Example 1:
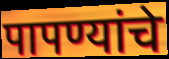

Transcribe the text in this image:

पापण्यांचे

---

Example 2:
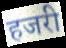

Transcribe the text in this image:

हजरी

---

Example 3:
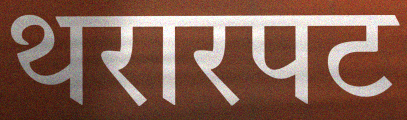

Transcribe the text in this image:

थरारपट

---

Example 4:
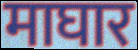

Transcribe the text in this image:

माघार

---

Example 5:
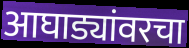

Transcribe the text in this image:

आघाड्यांवरचा